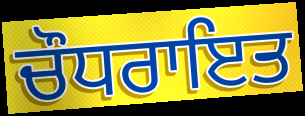
ਚੌਧਰਾਇਤ